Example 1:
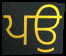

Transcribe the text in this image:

ਪਉ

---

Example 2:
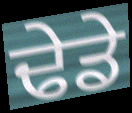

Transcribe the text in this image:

ਢੇਡੇ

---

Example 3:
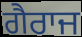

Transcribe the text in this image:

ਗੈਰਾਜ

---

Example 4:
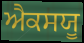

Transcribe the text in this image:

ਐਕਸਯੂ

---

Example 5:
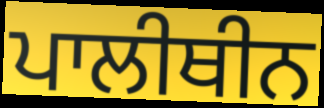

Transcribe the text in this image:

ਪਾਲੀਥੀਨ